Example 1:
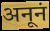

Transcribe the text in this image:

अनूनं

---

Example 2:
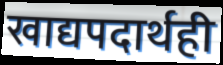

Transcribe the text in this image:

खाद्यपदार्थही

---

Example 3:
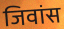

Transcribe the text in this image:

जिवांस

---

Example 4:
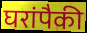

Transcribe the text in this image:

घरांपैकी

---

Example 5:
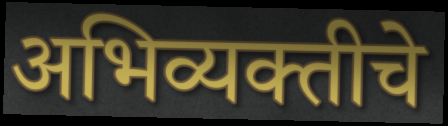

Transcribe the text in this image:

अभिव्यक्तीचे